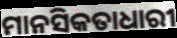
ମାନସିକତାଧାରୀ